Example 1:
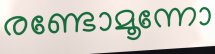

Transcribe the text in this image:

രണ്ടോമൂന്നോ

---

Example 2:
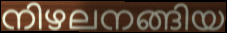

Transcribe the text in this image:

നിഴലനങ്ങിയ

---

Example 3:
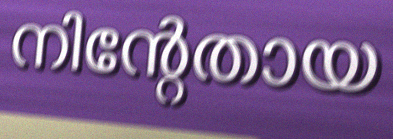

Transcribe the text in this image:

നിന്റേതായ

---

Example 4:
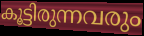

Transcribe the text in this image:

കൂട്ടിരുന്നവരും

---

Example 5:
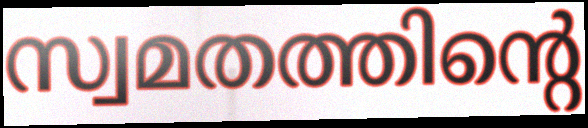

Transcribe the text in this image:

സ്വമതത്തിന്റെ